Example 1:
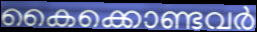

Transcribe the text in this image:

കൈക്കൊണ്ടവർ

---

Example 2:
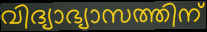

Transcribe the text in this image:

വിദ്യാഭ്യാസത്തിന്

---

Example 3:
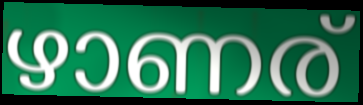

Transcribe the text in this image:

ഴാണര്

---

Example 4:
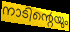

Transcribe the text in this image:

നാടിന്റെയും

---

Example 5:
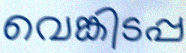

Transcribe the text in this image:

വെങ്കിടപ്പ